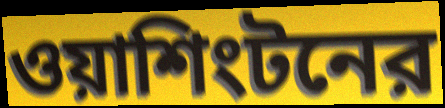
ওয়াশিংটনের